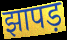
झापड़